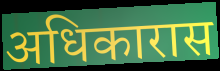
अधिकारास